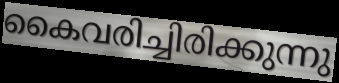
കൈവരിച്ചിരിക്കുന്നു